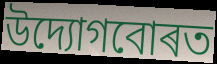
উদ্যোগবোৰত